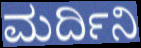
ಮರ್ದಿನಿ